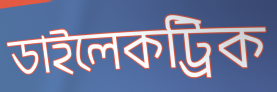
ডাইলেকট্রিক